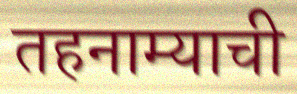
तहनाम्याची